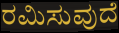
ರಮಿಸುವುದೆ